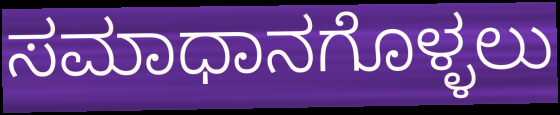
ಸಮಾಧಾನಗೊಳ್ಳಲು